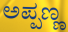
ಅಪ್ಪಣ್ಣ